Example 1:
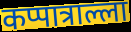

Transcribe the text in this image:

कप्पात्राल्ला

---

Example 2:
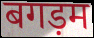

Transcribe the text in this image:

बगड़म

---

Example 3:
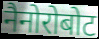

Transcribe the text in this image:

नैनोरोबोट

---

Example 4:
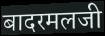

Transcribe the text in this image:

बादरमलजी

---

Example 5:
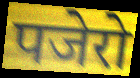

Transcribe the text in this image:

पजेरो